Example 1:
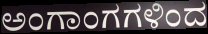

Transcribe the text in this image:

ಅಂಗಾಂಗಗಳಿಂದ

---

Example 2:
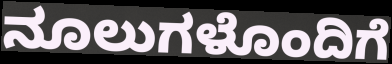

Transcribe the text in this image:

ನೂಲುಗಳೊಂದಿಗೆ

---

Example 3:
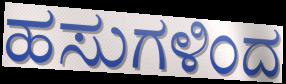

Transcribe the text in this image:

ಹಸುಗಳಿಂದ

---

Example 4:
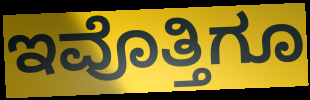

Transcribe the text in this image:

ಇವೊತ್ತಿಗೂ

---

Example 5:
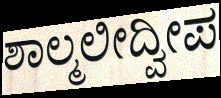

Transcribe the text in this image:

ಶಾಲ್ಮಲೀದ್ವೀಪ